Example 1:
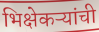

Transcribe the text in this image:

भिक्षेकऱ्यांची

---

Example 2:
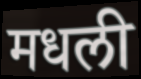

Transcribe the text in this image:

मधली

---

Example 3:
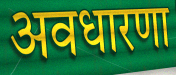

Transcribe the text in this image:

अवधारणा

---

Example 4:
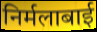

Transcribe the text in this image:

निर्मलाबाई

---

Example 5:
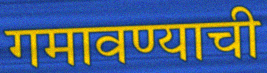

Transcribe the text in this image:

गमावण्याची